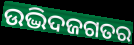
ଉଦ୍ଭିଦଜଗତର